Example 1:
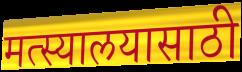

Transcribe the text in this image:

मत्स्यालयासाठी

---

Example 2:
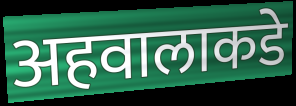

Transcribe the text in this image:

अहवालाकडे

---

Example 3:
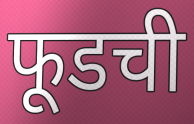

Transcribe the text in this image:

फूडची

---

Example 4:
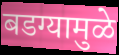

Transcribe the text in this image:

बडग्यामुळे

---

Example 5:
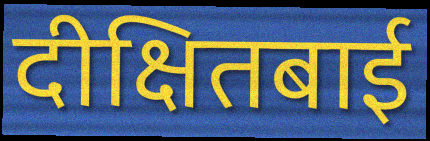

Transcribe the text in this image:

दीक्षितबाई